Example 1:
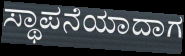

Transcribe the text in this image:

ಸ್ಥಾಪನೆಯಾದಾಗ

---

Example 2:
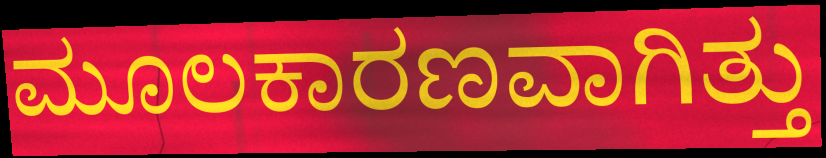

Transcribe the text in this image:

ಮೂಲಕಾರಣವಾಗಿತ್ತು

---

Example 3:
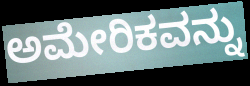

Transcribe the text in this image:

ಅಮೇರಿಕವನ್ನು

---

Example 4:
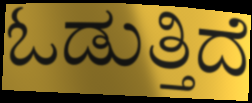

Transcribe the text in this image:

ಓಡುತ್ತಿದೆ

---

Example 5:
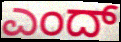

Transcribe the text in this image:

ಎಂದ್